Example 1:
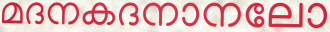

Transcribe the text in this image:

മദനകദനാനലോ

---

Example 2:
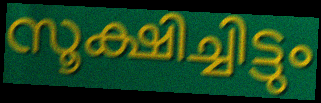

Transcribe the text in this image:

സൂക്ഷിച്ചിട്ടും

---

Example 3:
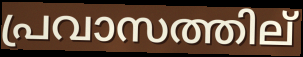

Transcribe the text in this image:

പ്രവാസത്തില്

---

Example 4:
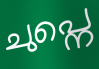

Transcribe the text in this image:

ചുപ്നെ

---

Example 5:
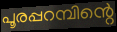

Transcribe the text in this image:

പൂരപ്പറമ്പിന്റെ